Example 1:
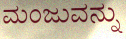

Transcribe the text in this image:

ಮಂಜುವನ್ನು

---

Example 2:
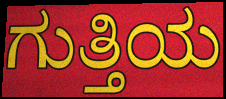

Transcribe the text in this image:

ಗುತ್ತಿಯ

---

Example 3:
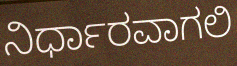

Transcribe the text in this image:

ನಿರ್ಧಾರವಾಗಲಿ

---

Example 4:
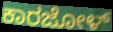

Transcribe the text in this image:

ಕಾರಜೋಳ್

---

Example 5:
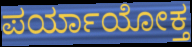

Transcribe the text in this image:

ಪರ್ಯಾಯೋಕ್ತ